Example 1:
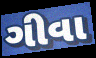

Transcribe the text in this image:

ગીવા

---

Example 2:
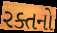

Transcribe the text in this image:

રક્તનો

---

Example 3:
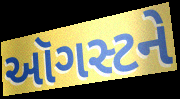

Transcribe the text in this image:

ઑગસ્ટને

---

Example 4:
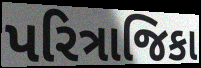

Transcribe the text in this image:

પરિત્રાજિકા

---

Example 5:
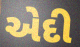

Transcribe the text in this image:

એદી